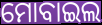
ମୋବାଇଲ